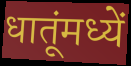
धातूंमध्यें